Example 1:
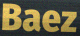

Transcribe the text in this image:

Baez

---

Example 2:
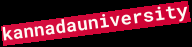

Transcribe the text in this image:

kannadauniversity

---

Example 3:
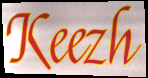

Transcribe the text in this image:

Keezh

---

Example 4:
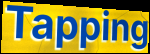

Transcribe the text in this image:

Tapping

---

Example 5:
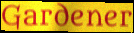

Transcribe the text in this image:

Gardener